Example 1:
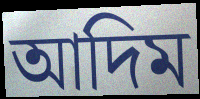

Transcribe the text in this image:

আদিম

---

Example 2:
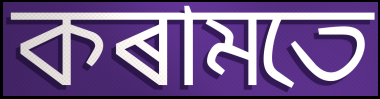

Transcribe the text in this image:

কৰামতে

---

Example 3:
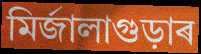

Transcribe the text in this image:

মিৰ্জালাগুড়াৰ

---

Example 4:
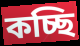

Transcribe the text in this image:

কচ্ছি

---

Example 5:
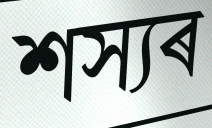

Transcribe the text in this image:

শস্যৰ